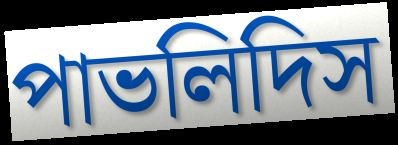
পাভলিদিস